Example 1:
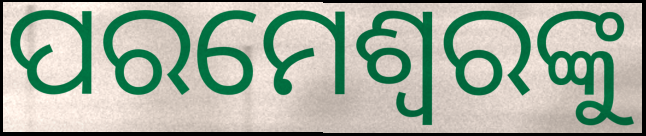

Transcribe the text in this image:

ପରମେଶ୍ୱରଙ୍କୁ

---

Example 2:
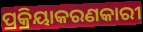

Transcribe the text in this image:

ପ୍ରକ୍ରିୟାକରଣକାରୀ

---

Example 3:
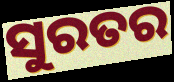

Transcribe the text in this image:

ସୁରତର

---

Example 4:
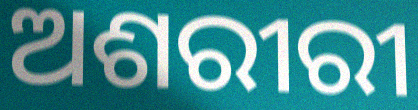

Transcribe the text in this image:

ଅଶରୀରୀ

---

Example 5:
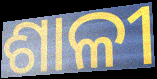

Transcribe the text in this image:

ଶାଳୀ